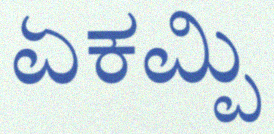
ಏಕಮ್ಪಿ